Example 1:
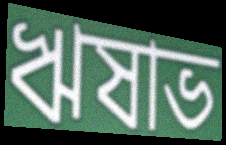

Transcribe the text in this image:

ঋষাভ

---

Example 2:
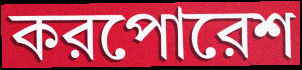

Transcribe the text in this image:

করপোরেশ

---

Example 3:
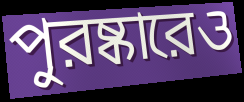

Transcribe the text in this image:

পুরষ্কারেও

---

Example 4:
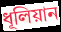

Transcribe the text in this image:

ধূলিয়ান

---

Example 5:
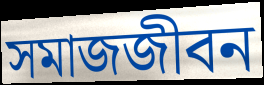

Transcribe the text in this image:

সমাজজীবন